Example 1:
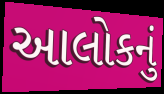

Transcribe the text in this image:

આલોકનું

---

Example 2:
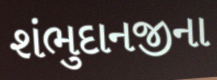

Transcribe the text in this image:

શંભુદાનજીના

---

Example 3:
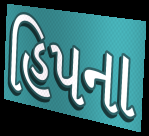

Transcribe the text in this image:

હિપના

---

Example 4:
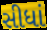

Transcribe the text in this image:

સીધાં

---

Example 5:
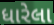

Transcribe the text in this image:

ધારેલા